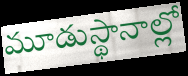
మూడుస్థానాల్లో